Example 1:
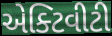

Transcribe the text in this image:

એક્ટિવીટી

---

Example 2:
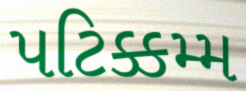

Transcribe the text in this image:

પટિક્કમ્મ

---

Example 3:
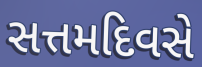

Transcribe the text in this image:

સત્તમદિવસે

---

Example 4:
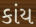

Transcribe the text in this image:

કાંય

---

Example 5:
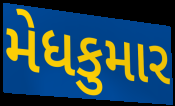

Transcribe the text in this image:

મેધકુમાર